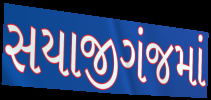
સયાજીગંજમાં